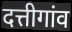
दत्तीगांव